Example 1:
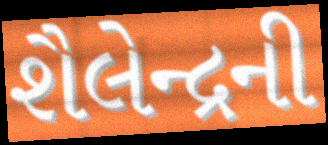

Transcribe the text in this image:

શૈલેન્દ્રની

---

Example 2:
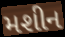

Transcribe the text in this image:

મશીન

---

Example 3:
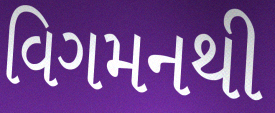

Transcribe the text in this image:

વિગમનથી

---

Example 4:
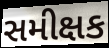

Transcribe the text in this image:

સમીક્ષક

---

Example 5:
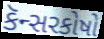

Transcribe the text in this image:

કૅન્સરકોષો